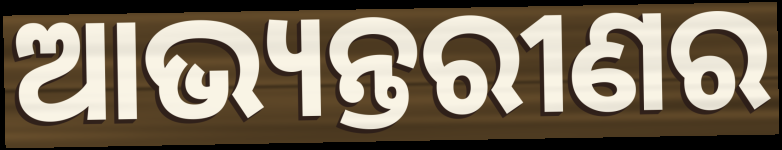
ଆଭ୍ୟନ୍ତରୀଣର